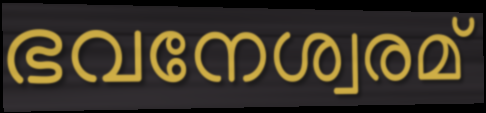
ഭവനേശ്വരമ്